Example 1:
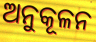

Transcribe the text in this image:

ଅନୁକୂଳନ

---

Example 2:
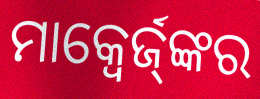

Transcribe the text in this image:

ମାକ୍ୱେର୍ଜ୍‌ଙ୍କର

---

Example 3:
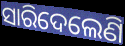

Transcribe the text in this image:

ସାରିଦେଲେଣି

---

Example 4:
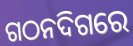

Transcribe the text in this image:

ଗଠନଦିଗରେ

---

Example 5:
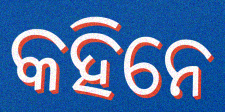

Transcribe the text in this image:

କହିନେ